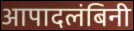
आपादलंबिनी